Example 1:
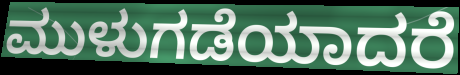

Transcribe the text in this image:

ಮುಳುಗಡೆಯಾದರೆ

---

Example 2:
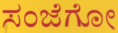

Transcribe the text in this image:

ಸಂಜೆಗೋ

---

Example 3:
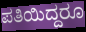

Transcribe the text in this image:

ಪತಿಯಿದ್ದರೂ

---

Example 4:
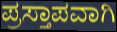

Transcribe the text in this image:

ಪ್ರಸ್ತಾಪವಾಗಿ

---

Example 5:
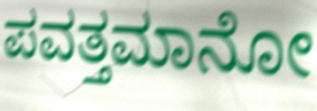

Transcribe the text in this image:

ಪವತ್ತಮಾನೋ